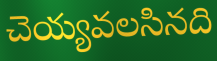
చెయ్యవలసినది